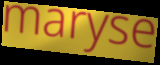
maryse